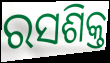
ରସଶିକ୍ତ